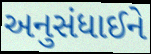
અનુસંધાઈને